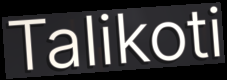
Talikoti